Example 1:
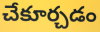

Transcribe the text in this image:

చేకూర్చడం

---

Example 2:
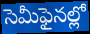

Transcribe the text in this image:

సెమీఫైనల్లో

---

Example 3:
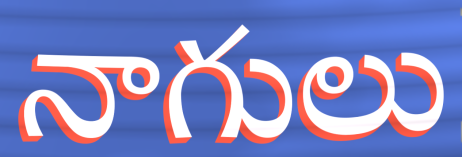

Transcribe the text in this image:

నాగులు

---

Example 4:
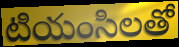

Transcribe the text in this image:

టియంసిలతో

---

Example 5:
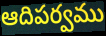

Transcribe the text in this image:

ఆదిపర్వము